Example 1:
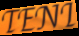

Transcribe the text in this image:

TENI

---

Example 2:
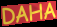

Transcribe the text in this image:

DAHA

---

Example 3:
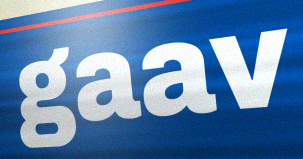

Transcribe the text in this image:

gaav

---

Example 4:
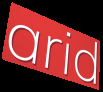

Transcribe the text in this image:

arid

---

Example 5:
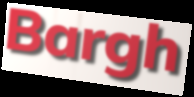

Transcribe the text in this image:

Bargh